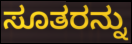
ಸೂತರನ್ನು